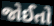
જોઈતો